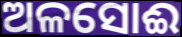
ଅଳସୋଈ